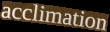
acclimation